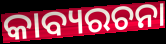
କାବ୍ୟରଚନା